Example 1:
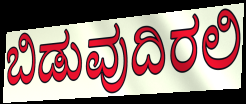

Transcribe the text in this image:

ಬಿಡುವುದಿರಲಿ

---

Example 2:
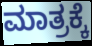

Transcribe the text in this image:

ಮಾತ್ರಕ್ಕೆ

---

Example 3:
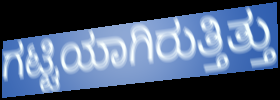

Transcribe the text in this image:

ಗಟ್ಟಿಯಾಗಿರುತ್ತಿತ್ತು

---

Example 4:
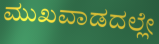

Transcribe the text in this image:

ಮುಖವಾಡದಲ್ಲೇ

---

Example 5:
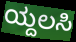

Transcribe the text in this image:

ಯ್ದಲಸಿ